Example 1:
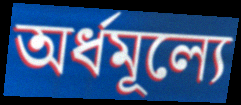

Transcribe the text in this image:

অর্ধমূল্যে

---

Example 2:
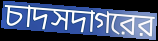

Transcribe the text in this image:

চাদসদাগরের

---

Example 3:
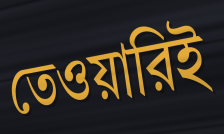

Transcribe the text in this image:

তেওয়ারিই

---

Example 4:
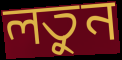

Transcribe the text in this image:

লতুন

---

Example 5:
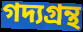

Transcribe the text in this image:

গদ্যগ্রন্থ